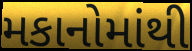
મકાનોમાંથી